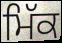
ਮਿੱਕ